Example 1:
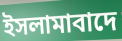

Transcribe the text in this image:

ইসলামাবাদে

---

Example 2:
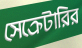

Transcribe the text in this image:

সেক্রেটারির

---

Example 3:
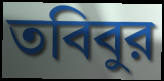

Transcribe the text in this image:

তবিবুর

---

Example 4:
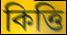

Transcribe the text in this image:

কিত্তি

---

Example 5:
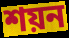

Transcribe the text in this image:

শয়ন